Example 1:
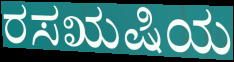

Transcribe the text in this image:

ರಸಋಷಿಯ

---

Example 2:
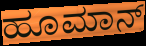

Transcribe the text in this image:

ಹೂಮಾನ್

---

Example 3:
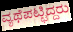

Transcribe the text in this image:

ವ್ಯಥೆಪಟ್ಟಿದ್ದರು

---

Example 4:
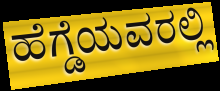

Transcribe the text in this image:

ಹೆಗ್ಡೆಯವರಲ್ಲಿ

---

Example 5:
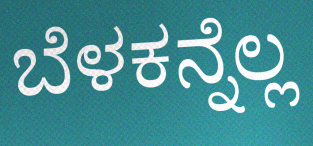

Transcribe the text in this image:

ಬೆಳಕನ್ನೆಲ್ಲ